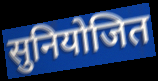
सुनियोजित